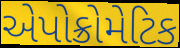
એપોક્રોમેટિક